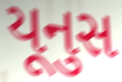
યૂનુસ